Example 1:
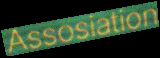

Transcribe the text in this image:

Assosiation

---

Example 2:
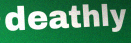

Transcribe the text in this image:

deathly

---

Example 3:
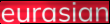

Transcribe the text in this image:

eurasian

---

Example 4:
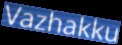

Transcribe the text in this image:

Vazhakku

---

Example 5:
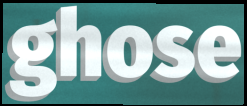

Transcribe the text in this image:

ghose